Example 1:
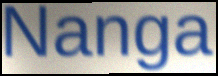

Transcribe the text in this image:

Nanga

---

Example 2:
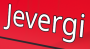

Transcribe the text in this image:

Jevergi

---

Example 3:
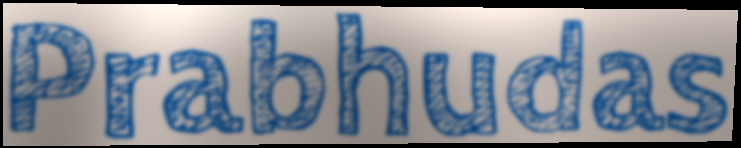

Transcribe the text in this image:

Prabhudas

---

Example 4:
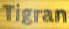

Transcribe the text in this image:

Tigran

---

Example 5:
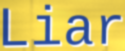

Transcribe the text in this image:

Liar